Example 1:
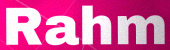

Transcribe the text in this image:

Rahm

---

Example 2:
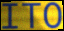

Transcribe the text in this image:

ITO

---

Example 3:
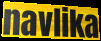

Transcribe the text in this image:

navlika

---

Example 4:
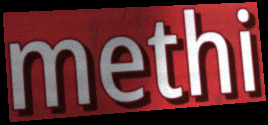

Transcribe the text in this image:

methi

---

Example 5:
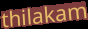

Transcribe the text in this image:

thilakam